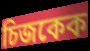
চিজকেক